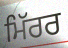
ਮਿੱਰਰ